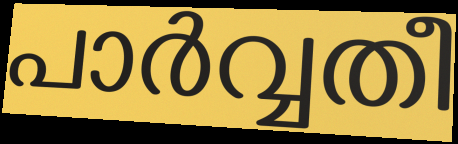
പാർവ്വതീ